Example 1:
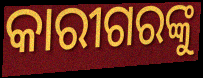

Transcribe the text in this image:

କାରୀଗରଙ୍କୁ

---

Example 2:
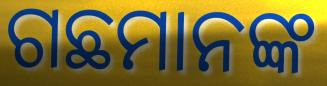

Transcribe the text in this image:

ଗଛମାନଙ୍କ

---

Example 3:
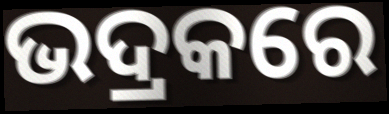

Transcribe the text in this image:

ଭଦ୍ରକରେ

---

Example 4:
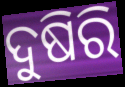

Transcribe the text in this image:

ଦୁଷିରି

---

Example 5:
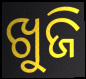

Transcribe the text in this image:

ଖୁଜି